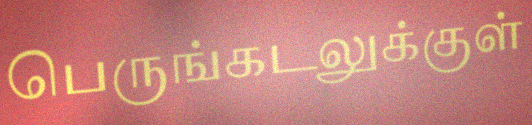
பெருங்கடலுக்குள்